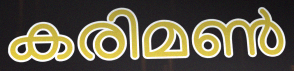
കരിമൺ